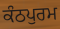
ਕੰਠਪੁਰਮ